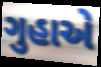
ગુહાએ